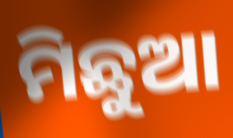
ମିଛୁଆ